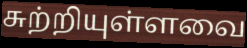
சுற்றியுள்ளவை